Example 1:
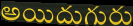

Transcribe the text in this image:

అయిదుగురు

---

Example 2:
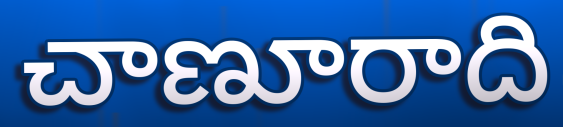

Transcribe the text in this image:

చాణూరాది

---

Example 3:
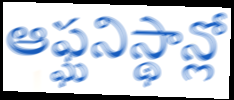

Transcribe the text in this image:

ఆఫ్ఘనిస్థాన్లో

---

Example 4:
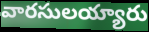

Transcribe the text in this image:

వారసులయ్యారు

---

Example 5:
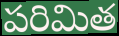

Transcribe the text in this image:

పరిమిత